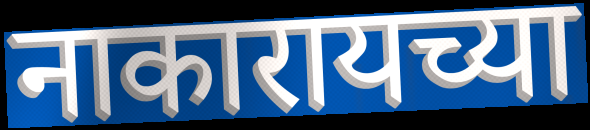
नाकारायच्या